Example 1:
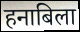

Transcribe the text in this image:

हनाबिला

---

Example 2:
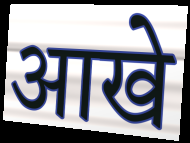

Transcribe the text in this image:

आखे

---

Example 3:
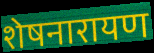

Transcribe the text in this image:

शेषनारायण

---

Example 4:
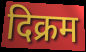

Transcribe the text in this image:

दिक्रम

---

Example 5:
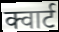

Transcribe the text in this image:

क्वार्ट